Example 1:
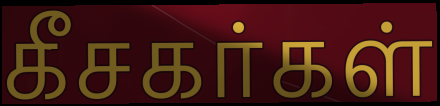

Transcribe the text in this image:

கீசகர்கள்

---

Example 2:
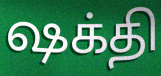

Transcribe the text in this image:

ஷக்தி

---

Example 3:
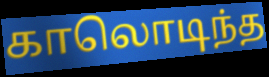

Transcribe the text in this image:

காலொடிந்த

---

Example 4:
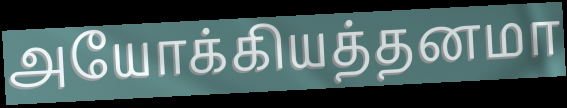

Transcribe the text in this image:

அயோக்கியத்தனமா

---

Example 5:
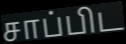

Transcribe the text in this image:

சாப்பிட